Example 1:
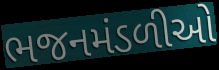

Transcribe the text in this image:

ભજનમંડળીઓ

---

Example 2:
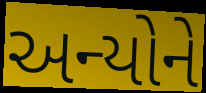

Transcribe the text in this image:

અન્યોને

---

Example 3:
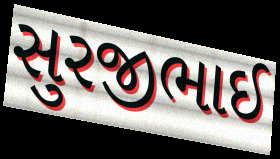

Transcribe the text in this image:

સુરજીભાઈ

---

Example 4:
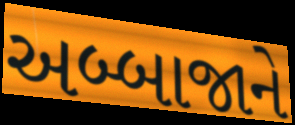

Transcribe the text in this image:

અબ્બાજાને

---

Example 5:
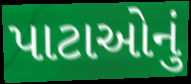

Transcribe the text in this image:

પાટાઓનું